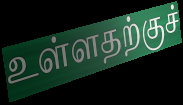
உள்ளதற்குச்